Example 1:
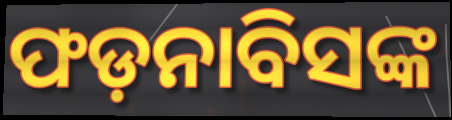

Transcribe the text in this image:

ଫଡ଼ନାବିସଙ୍କ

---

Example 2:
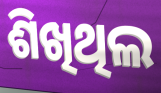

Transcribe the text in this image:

ଶିଖିଥିଲ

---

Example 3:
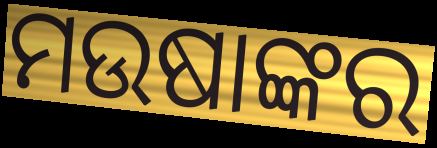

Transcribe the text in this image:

ମଉଷାଙ୍କର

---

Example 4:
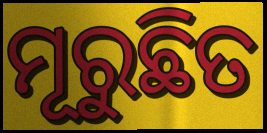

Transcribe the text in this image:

ମୂରୁଛିତ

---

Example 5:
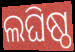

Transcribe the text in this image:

ଲଘିଷ୍ଠ